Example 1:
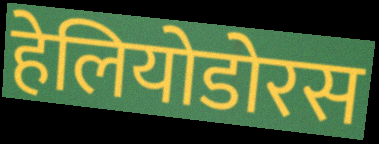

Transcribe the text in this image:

हेलियोडोरस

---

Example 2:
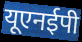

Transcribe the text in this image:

यूएनईपी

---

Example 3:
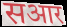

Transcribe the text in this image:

सआर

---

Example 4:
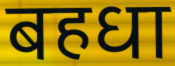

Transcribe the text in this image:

बहधा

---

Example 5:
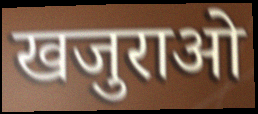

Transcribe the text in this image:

खजुराओ